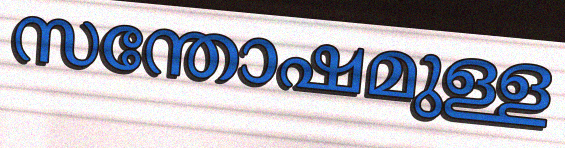
സന്തോഷമുള്ള